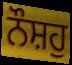
ਨੌਸ਼ਹੁ